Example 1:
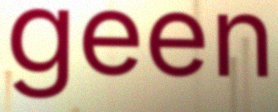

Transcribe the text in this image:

geen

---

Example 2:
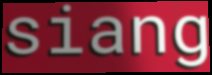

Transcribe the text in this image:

siang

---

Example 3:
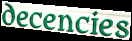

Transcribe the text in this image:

decencies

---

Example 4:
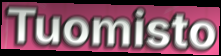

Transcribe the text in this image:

Tuomisto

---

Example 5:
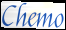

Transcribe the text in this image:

Chemo